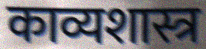
काव्यशास्त्र